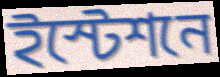
ইস্টেশনে